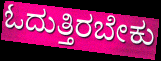
ಓದುತ್ತಿರಬೇಕು